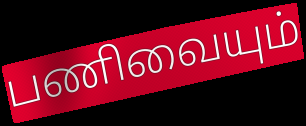
பணிவையும்